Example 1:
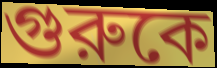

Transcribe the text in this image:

গুরুকে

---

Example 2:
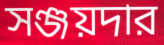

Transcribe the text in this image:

সঞ্জয়দার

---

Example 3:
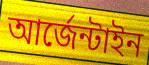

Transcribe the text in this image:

আর্জেন্টাইন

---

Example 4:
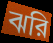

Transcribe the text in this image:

ঝরি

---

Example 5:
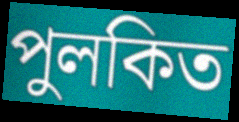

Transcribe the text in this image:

পুলকিত